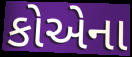
કોએના